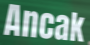
Ancak